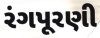
રંગપૂરણી